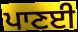
ਪਾਣਈ